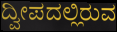
ದ್ವೀಪದಲ್ಲಿರುವ